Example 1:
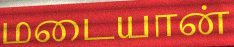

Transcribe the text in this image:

மடையான்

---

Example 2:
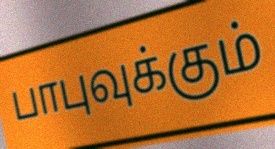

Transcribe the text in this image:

பாபுவுக்கும்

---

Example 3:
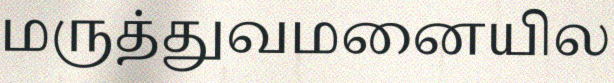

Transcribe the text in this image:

மருத்துவமனையில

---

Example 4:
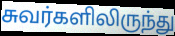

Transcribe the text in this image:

சுவர்களிலிருந்து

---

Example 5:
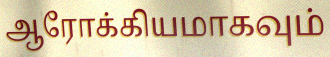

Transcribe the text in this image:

ஆரோக்கியமாகவும்